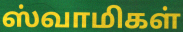
ஸ்வாமிகள்